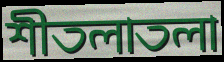
শীতলাতলা